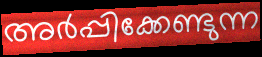
അർപ്പിക്കേണ്ടുന്ന